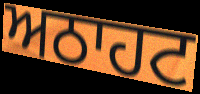
ਅਠਾਹਟ